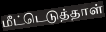
மீட்டெடுத்தாள்